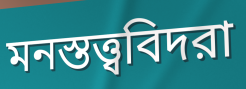
মনস্তত্ত্ববিদরা